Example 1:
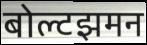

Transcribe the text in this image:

बोल्टझमन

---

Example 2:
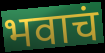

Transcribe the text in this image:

भवाचं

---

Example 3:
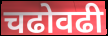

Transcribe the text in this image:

चढोवढी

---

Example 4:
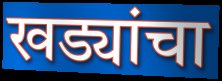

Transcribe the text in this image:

खड्यांचा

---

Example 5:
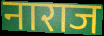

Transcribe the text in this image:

नाराज